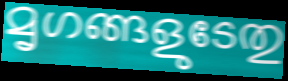
മൃഗങ്ങളുടേതു